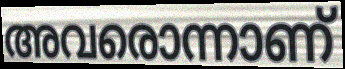
അവരൊന്നാണ്